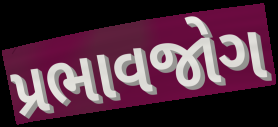
પ્રભાવજોગ